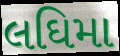
લઘિમા